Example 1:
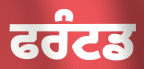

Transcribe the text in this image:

ਫਰੰਟਡ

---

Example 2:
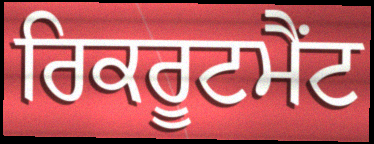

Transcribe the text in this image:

ਰਿਕਰੂਟਮੈਂਟ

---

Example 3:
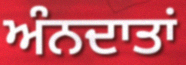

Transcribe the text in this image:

ਅੰਨਦਾਤਾਂ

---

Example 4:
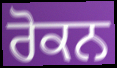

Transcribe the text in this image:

ਰੋਕਨ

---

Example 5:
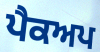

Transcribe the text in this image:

ਪੈਕਅਪ